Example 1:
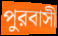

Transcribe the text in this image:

পুরবাসী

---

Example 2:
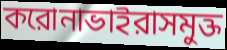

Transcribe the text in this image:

করোনাভাইরাসমুক্ত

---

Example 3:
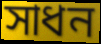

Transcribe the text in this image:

সাধন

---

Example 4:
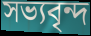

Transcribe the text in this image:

সভ্যবৃন্দ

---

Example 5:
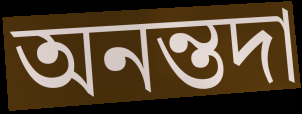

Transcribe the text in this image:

অনন্তদা